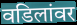
वडिलांवर